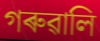
গৰুৱালি